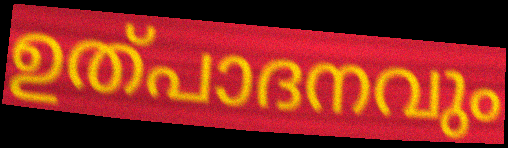
ഉത്പാദനവും